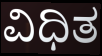
ವಿಧಿತ